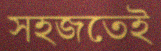
সহজতেই